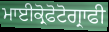
ਮਾਈਕ੍ਰੋਫੋਟੋਗ੍ਰਾਫੀ